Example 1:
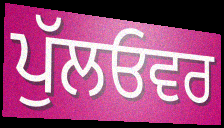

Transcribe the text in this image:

ਪੁੱਲਓਵਰ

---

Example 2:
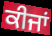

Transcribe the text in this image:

ਕੀਜਾਂ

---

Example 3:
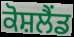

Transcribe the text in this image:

ਕੋਸ਼ਲੈਂਡ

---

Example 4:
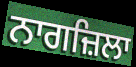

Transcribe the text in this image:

ਨਾਗਜ਼ਿਲਾ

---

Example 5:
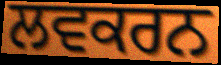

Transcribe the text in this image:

ਲਵਕਰਨ